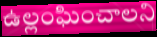
ఉల్లంఘించాలని